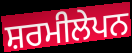
ਸ਼ਰਮੀਲੇਪਨ